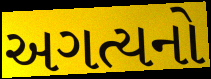
અગત્યનો